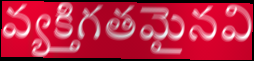
వ్యక్తిగతమైనవి